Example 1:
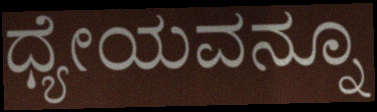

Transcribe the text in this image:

ಧ್ಯೇಯವನ್ನೂ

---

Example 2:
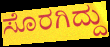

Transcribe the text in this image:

ಸೊರಗಿದ್ದು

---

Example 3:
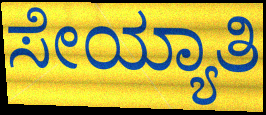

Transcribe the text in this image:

ಸೇಯ್ಯಾತಿ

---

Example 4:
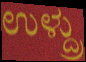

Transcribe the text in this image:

ಉಳ್ದ್ರು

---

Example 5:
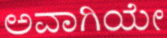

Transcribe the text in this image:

ಅವಾಗಿಯೇ